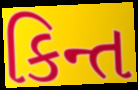
કિન્ત